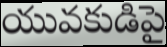
యువకుడిపై